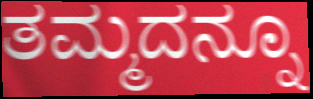
ತಮ್ಮದನ್ನೂ